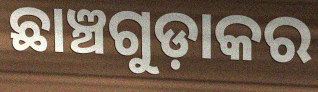
ଛାଞ୍ଚଗୁଡ଼ାକର